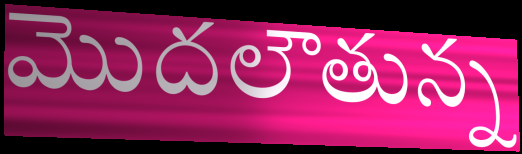
మొదలౌతున్న